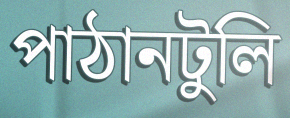
পাঠানটুলি